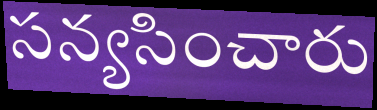
సన్యసించారు